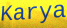
Karya